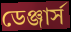
ডেঞ্জার্স